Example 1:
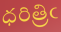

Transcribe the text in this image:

ధరిత్రిఁ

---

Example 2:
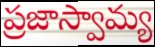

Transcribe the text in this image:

ప్రజాస్వామ్య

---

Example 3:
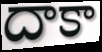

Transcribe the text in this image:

దాకా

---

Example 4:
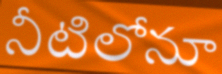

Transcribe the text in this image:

నీటిలోనూ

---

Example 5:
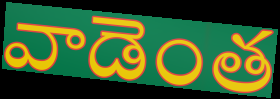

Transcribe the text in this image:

వాడెంత